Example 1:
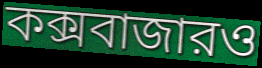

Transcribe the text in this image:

কক্সবাজারও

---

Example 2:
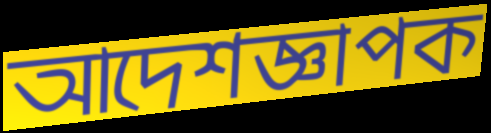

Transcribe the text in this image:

আদেশজ্ঞাপক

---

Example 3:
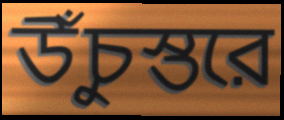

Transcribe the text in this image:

উঁচুস্তরে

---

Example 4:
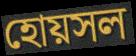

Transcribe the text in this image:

হোয়সল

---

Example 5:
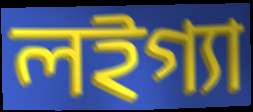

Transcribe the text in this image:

লইগ্যা